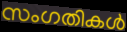
സംഗതികൾ